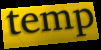
temp